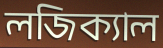
লজিক্যাল